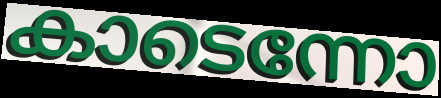
കാടെന്നോ